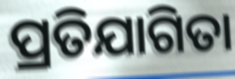
ପ୍ରତିଯାଗିତା